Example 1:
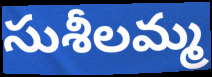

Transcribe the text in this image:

సుశీలమ్మ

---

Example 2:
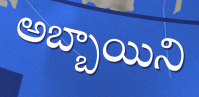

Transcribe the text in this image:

అబ్బాయిని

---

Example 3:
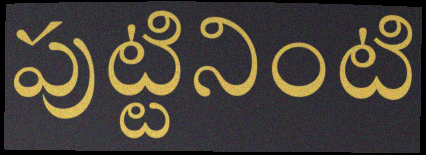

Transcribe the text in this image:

పుట్టినింటి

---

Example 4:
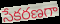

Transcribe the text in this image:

సేకరణగా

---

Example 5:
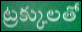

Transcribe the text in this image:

ట్రక్కులతో